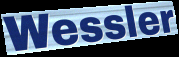
Wessler